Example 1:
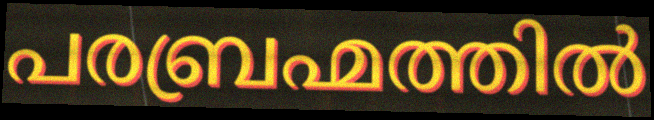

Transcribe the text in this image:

പരബ്രഹ്മത്തിൽ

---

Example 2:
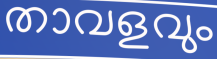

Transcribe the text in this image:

താവളവും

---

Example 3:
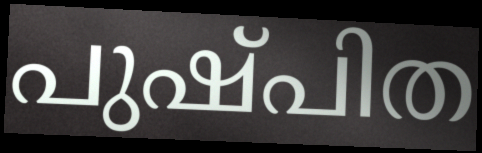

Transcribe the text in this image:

പുഷ്പിത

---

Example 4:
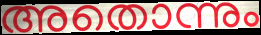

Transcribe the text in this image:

അതൊന്നും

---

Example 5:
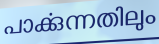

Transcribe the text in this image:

പാൎക്കുന്നതിലും